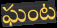
ఘంట